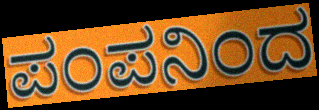
ಪಂಪನಿಂದ